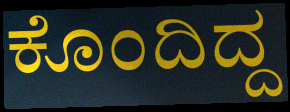
ಕೊಂದಿದ್ದ